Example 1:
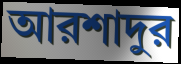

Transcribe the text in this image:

আরশাদুর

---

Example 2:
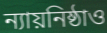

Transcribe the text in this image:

ন্যায়নিষ্ঠাও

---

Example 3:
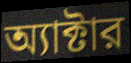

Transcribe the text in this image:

অ্যাক্টার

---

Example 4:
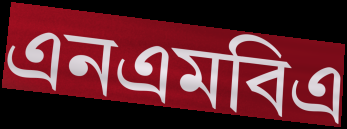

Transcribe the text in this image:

এনএমবিএ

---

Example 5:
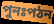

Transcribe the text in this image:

পুনঃপঠন